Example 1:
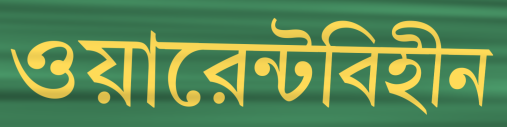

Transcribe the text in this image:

ওয়ারেন্টবিহীন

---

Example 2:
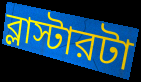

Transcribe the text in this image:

ব্লাস্টারটা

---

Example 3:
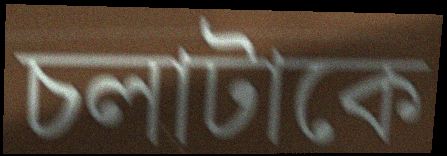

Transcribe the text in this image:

চলাটাকে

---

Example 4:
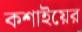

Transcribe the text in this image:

কশাইয়ের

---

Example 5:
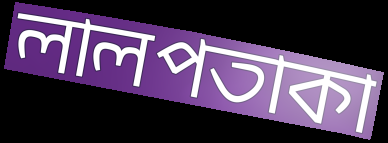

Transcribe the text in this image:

লালপতাকা